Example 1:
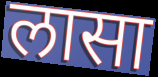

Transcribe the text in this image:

लासा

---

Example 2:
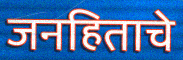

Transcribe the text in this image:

जनहिताचे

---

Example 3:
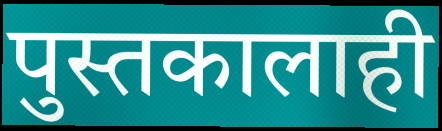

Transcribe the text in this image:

पुस्तकालाही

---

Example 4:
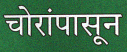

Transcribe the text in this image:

चोरांपासून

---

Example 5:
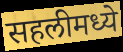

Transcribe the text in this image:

सहलीमध्ये